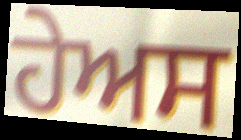
ਹੇਅਸ